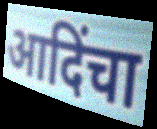
आदिंचा